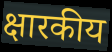
क्षारकीय